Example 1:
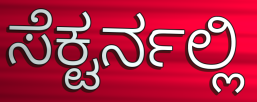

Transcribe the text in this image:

ಸೆಕ್ಟರ್ನಲ್ಲಿ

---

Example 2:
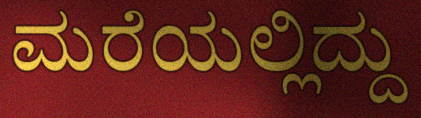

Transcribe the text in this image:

ಮರೆಯಲ್ಲಿದ್ದು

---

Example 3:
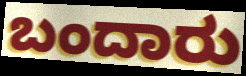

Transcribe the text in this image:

ಬಂದಾರು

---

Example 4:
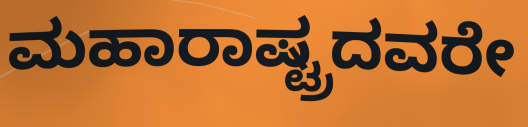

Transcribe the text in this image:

ಮಹಾರಾಷ್ಟ್ರದವರೇ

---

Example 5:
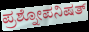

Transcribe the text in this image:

ಪ್ರಶ್ನೋಪನಿಷತ್